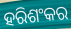
ହରିଶଂକର